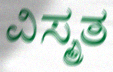
ವಿಸ್ಮೃತ